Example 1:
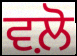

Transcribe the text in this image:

ਵਲ਼ੋ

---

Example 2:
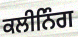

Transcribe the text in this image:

ਕਲੀਨਿੰਗ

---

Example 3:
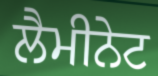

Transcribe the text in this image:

ਲੈਮੀਨੇਟ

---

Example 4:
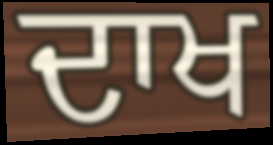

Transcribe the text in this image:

ਦਾਖ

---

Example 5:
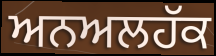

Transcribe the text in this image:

ਅਨਅਲਹੱਕ